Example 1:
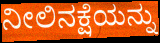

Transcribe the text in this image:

ನೀಲಿನಕ್ಷೆಯನ್ನು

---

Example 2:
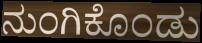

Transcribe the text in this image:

ನುಂಗಿಕೊಂಡು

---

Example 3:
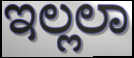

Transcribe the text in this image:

ಇಲ್ಲಲಾ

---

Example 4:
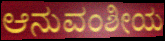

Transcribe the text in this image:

ಆನುವಂಶೀಯ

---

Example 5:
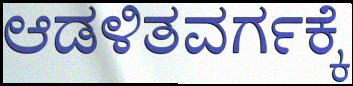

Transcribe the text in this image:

ಆಡಳಿತವರ್ಗಕ್ಕೆ